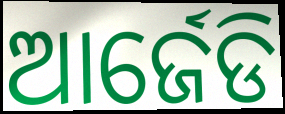
ଆର୍ଜେଡି